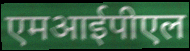
एमआईपीएल